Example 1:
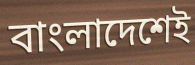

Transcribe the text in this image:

বাংলাদেশেই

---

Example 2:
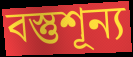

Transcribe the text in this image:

বস্তুশূন্য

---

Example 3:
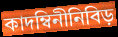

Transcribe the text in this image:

কাদম্বিনীনিবিড়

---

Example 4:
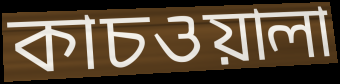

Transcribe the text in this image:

কাচওয়ালা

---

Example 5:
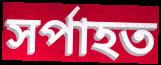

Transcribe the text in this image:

সর্পাহত